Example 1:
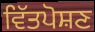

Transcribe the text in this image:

ਵਿੱਤਪੋਸ਼ਣ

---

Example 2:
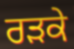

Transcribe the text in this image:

ਰੜਕੇ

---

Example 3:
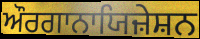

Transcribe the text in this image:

ਔਰਗਾਨਾਯਿਜ਼ੇਸ਼ਨ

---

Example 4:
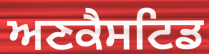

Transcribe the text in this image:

ਅਣਕੈਸਟਿਡ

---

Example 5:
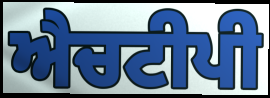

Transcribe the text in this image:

ਐਚਟੀਪੀ